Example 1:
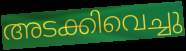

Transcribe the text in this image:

അടക്കിവെച്ചു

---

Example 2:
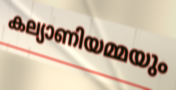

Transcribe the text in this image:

കല്യാണിയമ്മയും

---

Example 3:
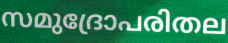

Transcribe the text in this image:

സമുദ്രോപരിതല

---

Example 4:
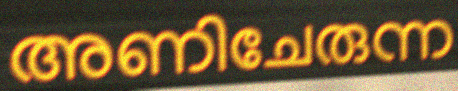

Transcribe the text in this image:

അണിചേരുന്ന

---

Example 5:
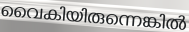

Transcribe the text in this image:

വൈകിയിരുന്നെങ്കിൽ